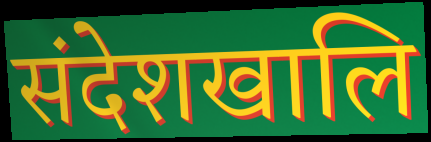
संदेशखालि